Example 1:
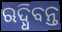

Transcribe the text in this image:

ଋଦ୍ଧିବନ୍ତ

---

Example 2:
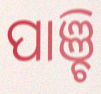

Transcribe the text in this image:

ପାଞ୍ଚି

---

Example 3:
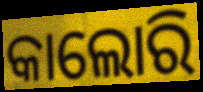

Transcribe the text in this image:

କାଲୋରି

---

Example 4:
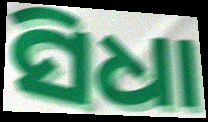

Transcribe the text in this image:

ସିଧା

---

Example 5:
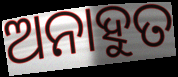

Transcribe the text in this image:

ଅନାହୁତ